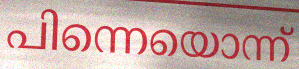
പിന്നെയൊന്ന്